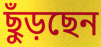
ছুঁড়ছেন